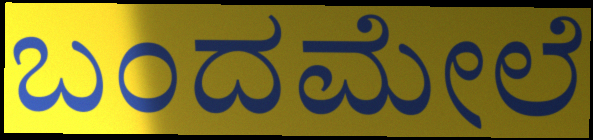
ಬಂದಮೇಲೆ